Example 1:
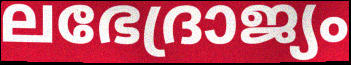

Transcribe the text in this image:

ലഭേദ്രാജ്യം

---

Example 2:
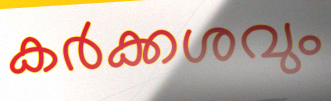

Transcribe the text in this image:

കർക്കശവും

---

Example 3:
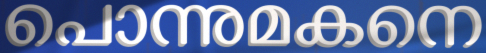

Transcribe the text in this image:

പൊന്നുമകനെ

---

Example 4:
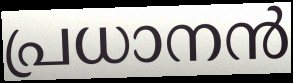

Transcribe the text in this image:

പ്രധാനൻ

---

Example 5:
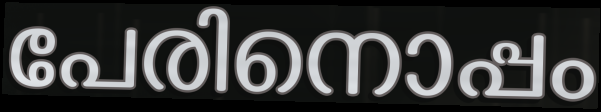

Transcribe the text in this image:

പേരിനൊപ്പം